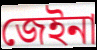
জেইনা